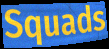
Squads